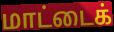
மாட்டைக்